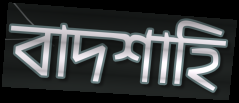
বাদশাহি